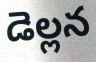
డెల్లన